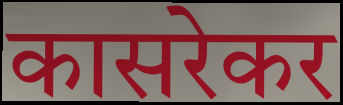
कासरेकर